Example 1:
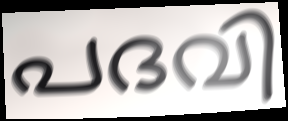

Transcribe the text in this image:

പദവി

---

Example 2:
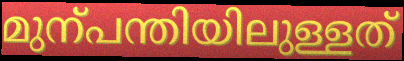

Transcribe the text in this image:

മുന്പന്തിയിലുള്ളത്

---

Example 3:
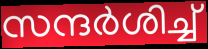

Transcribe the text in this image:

സന്ദർശിച്ച്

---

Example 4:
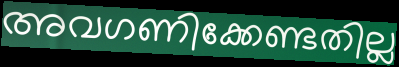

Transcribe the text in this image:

അവഗണിക്കേണ്ടതില്ല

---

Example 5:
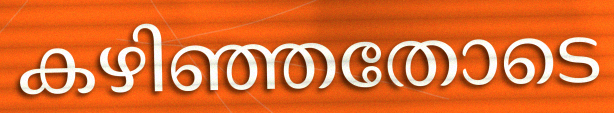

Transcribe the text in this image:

കഴിഞ്ഞതോടെ